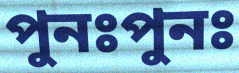
পুনঃপুনঃ